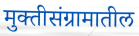
मुक्तीसंग्रामातील